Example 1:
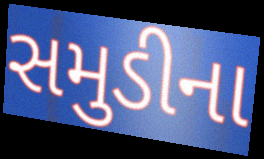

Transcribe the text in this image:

સમુડીના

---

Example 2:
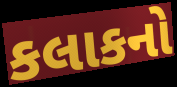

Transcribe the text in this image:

કલાકનો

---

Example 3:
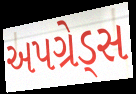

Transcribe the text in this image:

અપગ્રેડ્સ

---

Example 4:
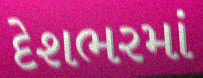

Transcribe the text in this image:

દેશભરમાં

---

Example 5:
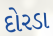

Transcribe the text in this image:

દોરડા